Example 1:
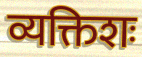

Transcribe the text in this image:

व्यक्तिशः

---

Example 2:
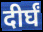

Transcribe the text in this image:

दीर्घं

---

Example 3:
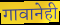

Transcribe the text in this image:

गावानेही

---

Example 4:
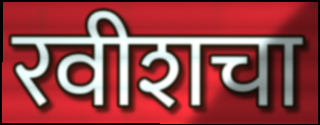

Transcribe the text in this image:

रवीशचा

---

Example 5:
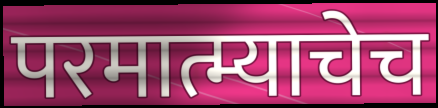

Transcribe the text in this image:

परमात्म्याचेच